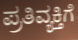
ಪ್ರತಿವ್ಯಕ್ತಿಗೆ